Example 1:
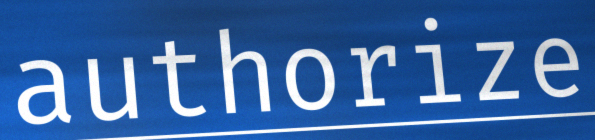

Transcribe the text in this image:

authorize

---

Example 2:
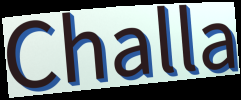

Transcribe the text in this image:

Challa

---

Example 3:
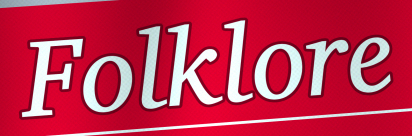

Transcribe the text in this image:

Folklore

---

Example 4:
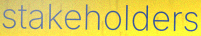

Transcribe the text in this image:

stakeholders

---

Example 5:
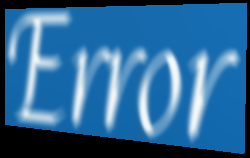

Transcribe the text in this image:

Error